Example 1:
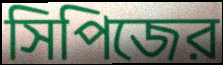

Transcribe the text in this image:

সিপিজের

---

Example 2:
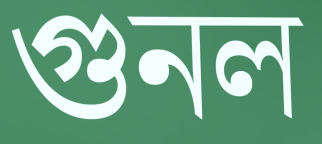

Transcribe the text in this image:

গুনল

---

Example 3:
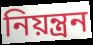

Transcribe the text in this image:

নিয়ন্ত্রন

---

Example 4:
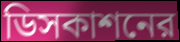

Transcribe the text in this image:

ডিসকাশনের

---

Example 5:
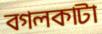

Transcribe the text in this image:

বগলকাটা